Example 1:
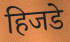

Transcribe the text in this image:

हिजडे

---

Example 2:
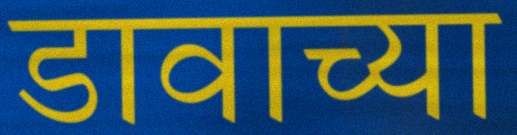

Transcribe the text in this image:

डावाच्या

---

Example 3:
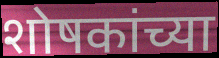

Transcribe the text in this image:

शोषकांच्या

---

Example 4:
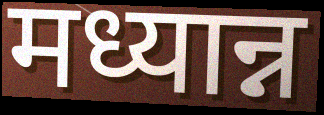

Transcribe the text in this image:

मध्यान्न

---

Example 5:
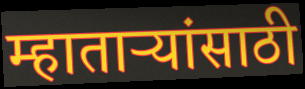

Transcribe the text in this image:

म्हाताऱ्यांसाठी